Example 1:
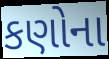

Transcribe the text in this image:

કણોના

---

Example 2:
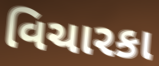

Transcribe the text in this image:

વિચારકા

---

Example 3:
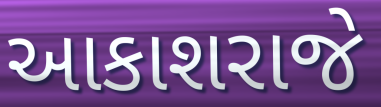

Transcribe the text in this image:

આકાશરાજે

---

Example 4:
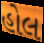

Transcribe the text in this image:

હોલ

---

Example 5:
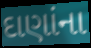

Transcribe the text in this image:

દાણાંના